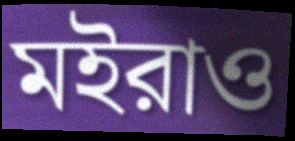
মইরাও